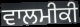
ਵਾਲਮੀਕੀ